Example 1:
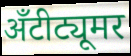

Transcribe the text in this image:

अँटीट्यूमर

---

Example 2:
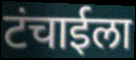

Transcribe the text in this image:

टंचाईला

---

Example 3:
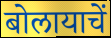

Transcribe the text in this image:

बोलायाचें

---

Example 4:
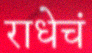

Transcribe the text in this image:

राधेचं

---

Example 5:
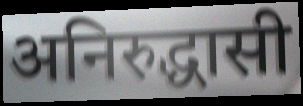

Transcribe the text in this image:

अनिरुद्धासी